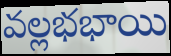
వల్లభభాయి